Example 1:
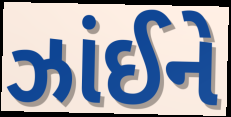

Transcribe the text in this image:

ઝાંઈને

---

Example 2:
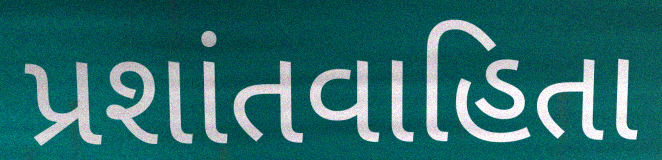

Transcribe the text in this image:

પ્રશાંતવાહિતા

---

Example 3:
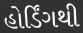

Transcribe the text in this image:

હોર્ડિંગથી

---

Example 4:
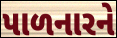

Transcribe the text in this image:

પાળનારને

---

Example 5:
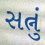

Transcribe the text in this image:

સત્નું